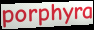
porphyra